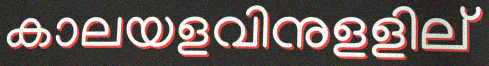
കാലയളവിനുളളില്